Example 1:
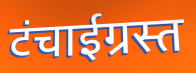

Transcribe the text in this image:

टंचाईग्रस्त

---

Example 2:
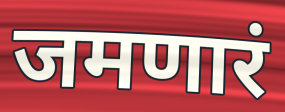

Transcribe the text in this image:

जमणारं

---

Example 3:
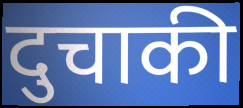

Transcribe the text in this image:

दुचाकी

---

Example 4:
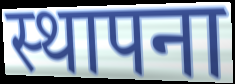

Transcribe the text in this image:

स्थापना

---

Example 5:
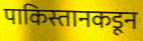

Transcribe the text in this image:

पाकिस्तानकडून